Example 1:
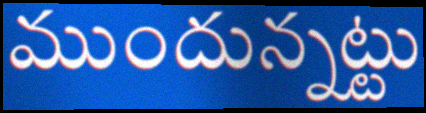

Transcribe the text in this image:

ముందున్నట్టు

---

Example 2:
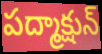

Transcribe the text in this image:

పద్మాక్షున్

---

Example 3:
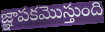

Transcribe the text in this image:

జ్ఞాపకమొస్తుంది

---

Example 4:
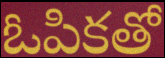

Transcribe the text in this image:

ఓపికతో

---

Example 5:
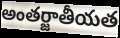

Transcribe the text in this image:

అంతర్జాతీయత